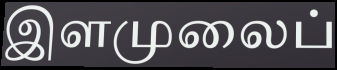
இளமுலைப்